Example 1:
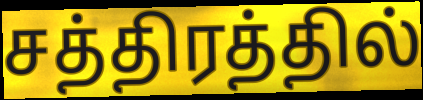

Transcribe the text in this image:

சத்திரத்தில்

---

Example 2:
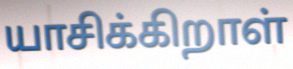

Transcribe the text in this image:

யாசிக்கிறாள்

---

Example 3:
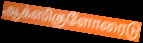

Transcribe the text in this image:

ஆக்ஸிகுளோரைடு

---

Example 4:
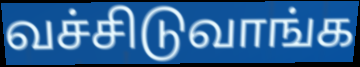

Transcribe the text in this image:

வச்சிடுவாங்க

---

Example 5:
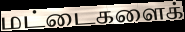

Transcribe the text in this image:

மட்டைகளைக்